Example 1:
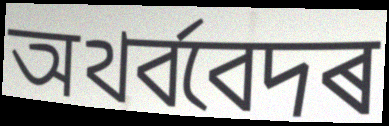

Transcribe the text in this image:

অথৰ্ববেদৰ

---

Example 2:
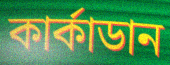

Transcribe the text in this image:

কাৰ্কাডান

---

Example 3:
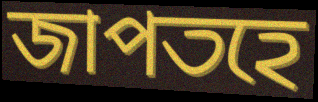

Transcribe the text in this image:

জাপতহে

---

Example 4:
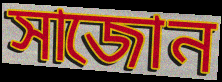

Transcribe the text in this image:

সাজোন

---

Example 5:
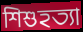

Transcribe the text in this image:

শিশুহত্যা